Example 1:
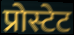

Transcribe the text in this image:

प्रोस्टेट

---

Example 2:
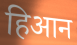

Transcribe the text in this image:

हिआन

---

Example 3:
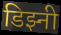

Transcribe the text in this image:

डिझ्नी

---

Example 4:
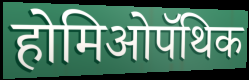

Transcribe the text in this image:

होमिओपॅथिक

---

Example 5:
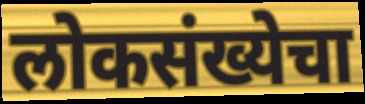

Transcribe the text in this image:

लोकसंख्येचा